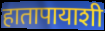
हातापायाशी